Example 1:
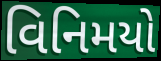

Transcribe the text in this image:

વિનિમયો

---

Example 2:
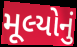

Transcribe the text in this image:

મૂલ્યોનું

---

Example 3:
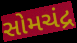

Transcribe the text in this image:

સોમચંદ્ર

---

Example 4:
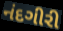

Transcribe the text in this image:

નંદગીરી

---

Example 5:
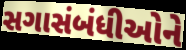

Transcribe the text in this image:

સગાસંબંધીઓને